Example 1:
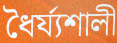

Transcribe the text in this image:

ধৈর্য্যশালী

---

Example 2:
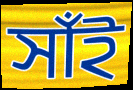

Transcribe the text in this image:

সাঁই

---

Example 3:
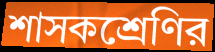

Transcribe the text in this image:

শাসকশ্রেণির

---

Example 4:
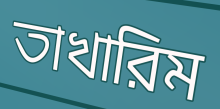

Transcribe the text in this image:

তাখারিম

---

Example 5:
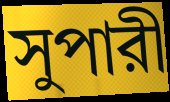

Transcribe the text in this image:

সুপারী